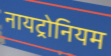
नायट्रोनियम